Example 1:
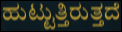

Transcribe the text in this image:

ಹುಟ್ಟುತ್ತಿರುತ್ತದೆ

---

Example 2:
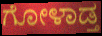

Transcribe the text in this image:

ಗೋಳಾಡ್ತ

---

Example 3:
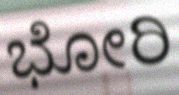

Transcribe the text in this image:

ಭೋರಿ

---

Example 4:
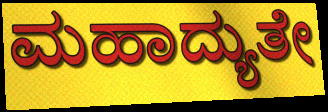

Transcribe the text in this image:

ಮಹಾದ್ಯುತೇ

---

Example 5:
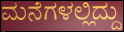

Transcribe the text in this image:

ಮನೆಗಳಲ್ಲಿದ್ದು